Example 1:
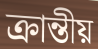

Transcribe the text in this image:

ক্রান্তীয়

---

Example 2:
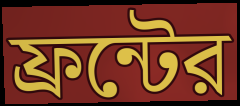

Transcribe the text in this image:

ফ্রন্টের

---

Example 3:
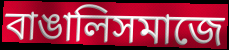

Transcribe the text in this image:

বাঙালিসমাজে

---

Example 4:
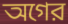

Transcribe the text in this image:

অগের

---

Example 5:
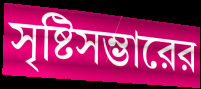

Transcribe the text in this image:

সৃষ্টিসম্ভারের